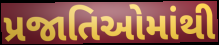
પ્રજાતિઓમાંથી